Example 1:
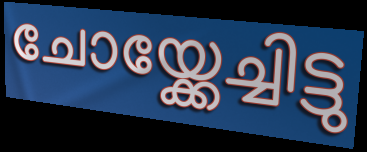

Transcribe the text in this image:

ചോയ്ക്കേച്ചിട്ടു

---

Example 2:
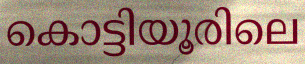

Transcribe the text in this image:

കൊട്ടിയൂരിലെ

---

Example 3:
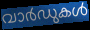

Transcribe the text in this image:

വാർഡുകൾ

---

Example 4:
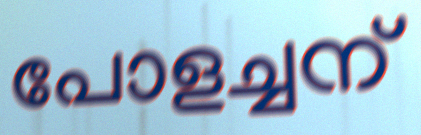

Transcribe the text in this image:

പോളച്ചന്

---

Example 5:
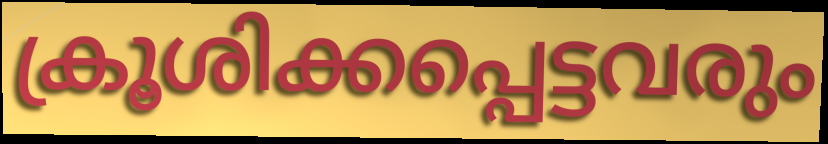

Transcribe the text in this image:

ക്രൂശിക്കപ്പെട്ടവരും